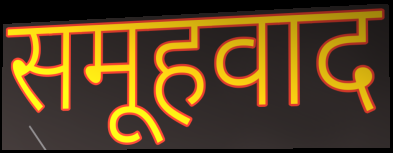
समूहवाद